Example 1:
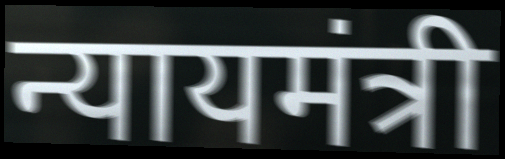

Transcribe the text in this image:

न्यायमंत्री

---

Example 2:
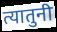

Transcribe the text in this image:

त्यातुनी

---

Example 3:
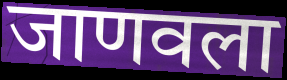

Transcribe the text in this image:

जाणवला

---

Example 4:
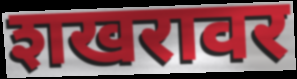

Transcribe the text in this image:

शखरावर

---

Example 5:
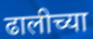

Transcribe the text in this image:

ढालीच्या